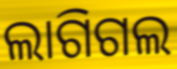
ଲାଗିଗଲ